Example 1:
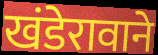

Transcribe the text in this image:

खंडेरावाने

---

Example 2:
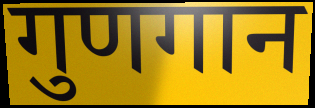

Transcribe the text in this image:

गुणगान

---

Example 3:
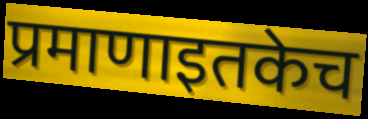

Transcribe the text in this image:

प्रमाणाइतकेच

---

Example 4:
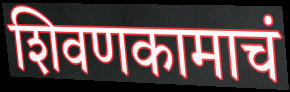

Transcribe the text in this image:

शिवणकामाचं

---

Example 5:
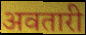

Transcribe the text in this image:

अवतारी